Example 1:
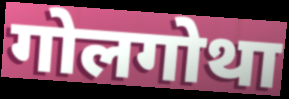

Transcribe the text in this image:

गोलगोथा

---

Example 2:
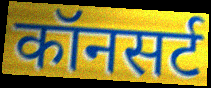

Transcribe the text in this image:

कॉनसर्ट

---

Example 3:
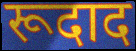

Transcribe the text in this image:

रूदाद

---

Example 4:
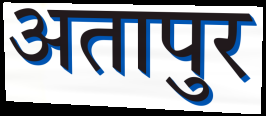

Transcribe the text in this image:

अतापुर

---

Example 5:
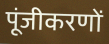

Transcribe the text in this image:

पूंजीकरणों